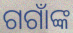
ଗଗାଁଙ୍କ